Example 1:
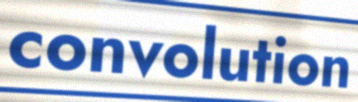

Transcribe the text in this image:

convolution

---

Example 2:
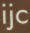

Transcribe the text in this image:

ijc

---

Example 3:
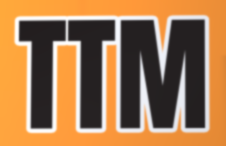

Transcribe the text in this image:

TTM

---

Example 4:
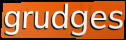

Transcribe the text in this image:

grudges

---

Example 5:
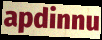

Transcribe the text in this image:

apdinnu